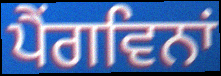
ਪੈਂਗਵਿਨਾਂ